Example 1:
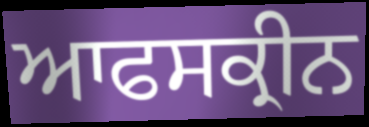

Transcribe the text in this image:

ਆਫਸਕ੍ਰੀਨ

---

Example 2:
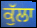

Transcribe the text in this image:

ਕੁੱਲਾ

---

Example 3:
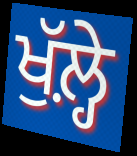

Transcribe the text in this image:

ਖੁੱਲ਼੍ਹੇ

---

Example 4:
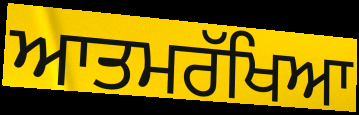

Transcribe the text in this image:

ਆਤਮਰੱਖਿਆ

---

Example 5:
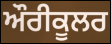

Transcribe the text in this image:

ਔਰੀਕੂਲਰ